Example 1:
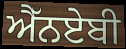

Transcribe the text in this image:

ਐੱਨਏਬੀ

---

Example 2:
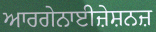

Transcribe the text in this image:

ਆਰਗੇਨਾਈਜ਼ੇਸ਼ਨਜ਼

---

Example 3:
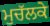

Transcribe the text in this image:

ਮੁਚੱਲਕੇ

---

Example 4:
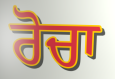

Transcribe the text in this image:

ਰੋਚਾ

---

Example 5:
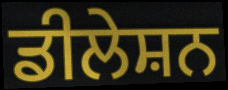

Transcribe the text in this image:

ਡੀਲੇਸ਼ਨ